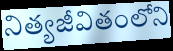
నిత్యజీవితంలోని